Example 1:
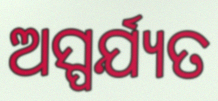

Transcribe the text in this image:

ଅସ୍ପର୍ଯ୍ୟତ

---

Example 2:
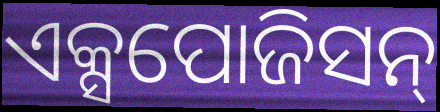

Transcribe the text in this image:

ଏକ୍ସପୋଜିସନ୍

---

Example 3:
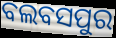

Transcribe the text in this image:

ବଲବସପୁର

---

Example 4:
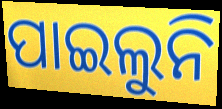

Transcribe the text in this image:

ପାଇଲୁନି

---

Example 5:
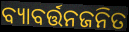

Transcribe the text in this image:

ବ୍ୟାବର୍ତ୍ତନଜନିତ